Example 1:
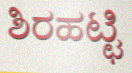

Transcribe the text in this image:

ಶಿರಹಟ್ಟಿ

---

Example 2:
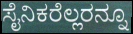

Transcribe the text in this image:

ಸೈನಿಕರೆಲ್ಲರನ್ನೂ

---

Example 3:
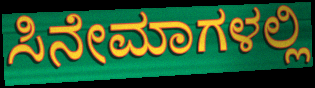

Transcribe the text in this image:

ಸಿನೇಮಾಗಳಲ್ಲಿ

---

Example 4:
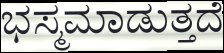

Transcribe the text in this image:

ಭಸ್ಮಮಾಡುತ್ತದೆ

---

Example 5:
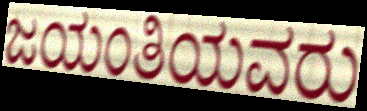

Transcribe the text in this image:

ಜಯಂತಿಯವರು